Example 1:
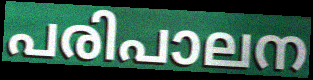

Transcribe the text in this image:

പരിപാലന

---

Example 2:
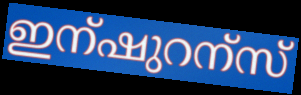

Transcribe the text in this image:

ഇന്ഷുറന്സ്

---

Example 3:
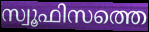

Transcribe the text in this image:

സ്വൂഫിസത്തെ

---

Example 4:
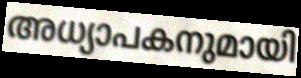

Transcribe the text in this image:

അധ്യാപകനുമായി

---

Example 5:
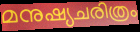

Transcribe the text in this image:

മനുഷ്യചരിത്രം